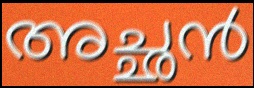
അച്ഛൻ